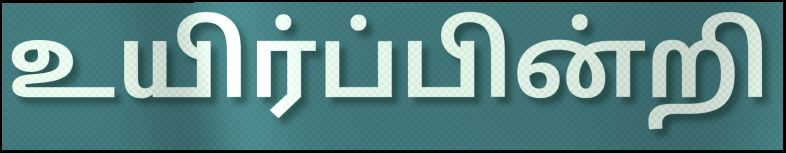
உயிர்ப்பின்றி